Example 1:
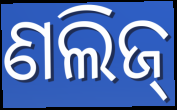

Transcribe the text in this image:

ଣଲିଜ୍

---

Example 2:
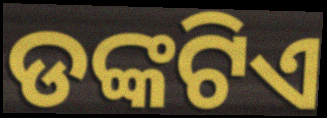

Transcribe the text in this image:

ଡଙ୍କଟିଏ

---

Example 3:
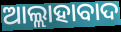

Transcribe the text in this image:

ଆଲ୍ଲାହାବାଦ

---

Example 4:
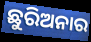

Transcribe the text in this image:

ଛୁରିଅନାର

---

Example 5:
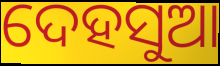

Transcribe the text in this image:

ଦେହସୁଆ